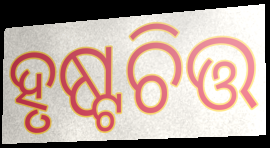
ହୃଷ୍ଟଚିତ୍ତ